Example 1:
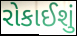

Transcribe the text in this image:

રોકાઈશું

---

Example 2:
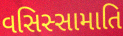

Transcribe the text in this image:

વસિસ્સામાતિ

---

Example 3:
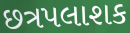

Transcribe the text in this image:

છત્રપલાશક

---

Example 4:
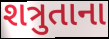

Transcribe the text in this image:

શત્રુતાના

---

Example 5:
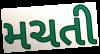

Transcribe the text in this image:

મચતી